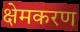
क्षेमकरण